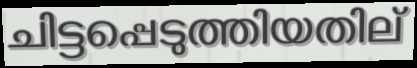
ചിട്ടപ്പെടുത്തിയതില്